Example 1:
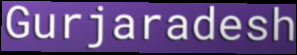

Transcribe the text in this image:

Gurjaradesh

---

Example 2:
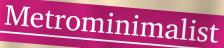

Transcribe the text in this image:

Metrominimalist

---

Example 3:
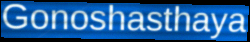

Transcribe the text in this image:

Gonoshasthaya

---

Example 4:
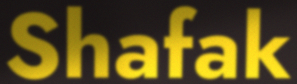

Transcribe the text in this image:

Shafak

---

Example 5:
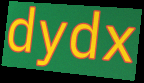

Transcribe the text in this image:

dydx